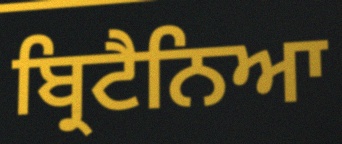
ਬ੍ਰਿਟੈਨਿਆ